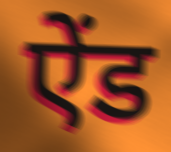
ऐंड